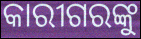
କାରୀଗରଙ୍କୁ